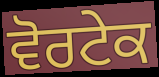
ਵੋਰਟੇਕ